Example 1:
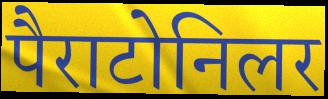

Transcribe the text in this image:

पैराटोनिलर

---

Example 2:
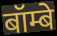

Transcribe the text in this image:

बॉम्बे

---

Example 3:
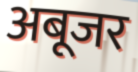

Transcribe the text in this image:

अबूजर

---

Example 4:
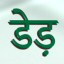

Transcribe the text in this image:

डेड़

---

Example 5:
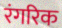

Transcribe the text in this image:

रंगरिक